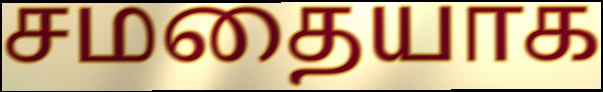
சமதையாக